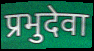
प्रभुदेवा